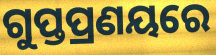
ଗୁପ୍ତପ୍ରଣୟରେ